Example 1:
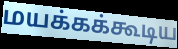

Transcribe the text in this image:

மயக்கக்கூடிய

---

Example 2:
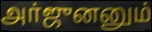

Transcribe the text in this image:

அர்ஜுனனும்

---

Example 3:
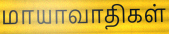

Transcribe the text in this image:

மாயாவாதிகள்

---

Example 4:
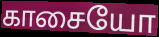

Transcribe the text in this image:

காசையோ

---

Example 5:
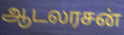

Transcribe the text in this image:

ஆடலரசன்